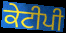
ਕੇਟੀਪੀ